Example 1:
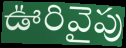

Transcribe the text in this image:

ఊరివైపు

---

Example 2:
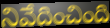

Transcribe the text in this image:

నివేదించింది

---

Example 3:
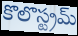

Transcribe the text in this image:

కొలొస్ట్రమ్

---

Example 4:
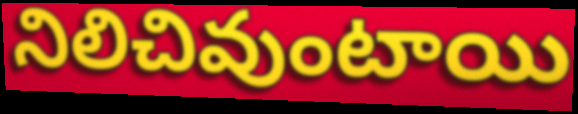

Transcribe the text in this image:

నిలిచివుంటాయి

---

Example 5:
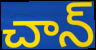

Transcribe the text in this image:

చాన్